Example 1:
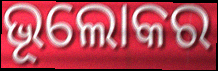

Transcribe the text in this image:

ଭୂଲୋକର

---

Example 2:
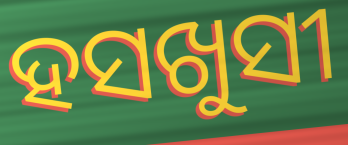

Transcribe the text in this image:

ହସଖୁସୀ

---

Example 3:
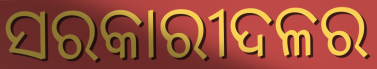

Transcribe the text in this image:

ସରକାରୀଦଳର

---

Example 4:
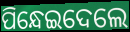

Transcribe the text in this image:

ପିନ୍ଧେଇଦେଲେ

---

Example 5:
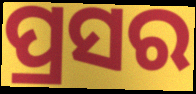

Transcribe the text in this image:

ପ୍ରସର